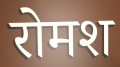
रोमश